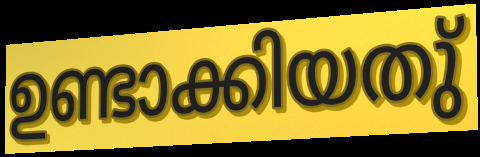
ഉണ്ടാക്കിയതു്